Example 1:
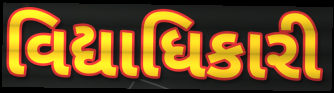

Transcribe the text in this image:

વિદ્યાધિકારી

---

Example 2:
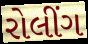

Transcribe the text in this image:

રોલીંગ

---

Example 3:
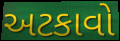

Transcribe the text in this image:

અટકાવો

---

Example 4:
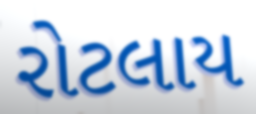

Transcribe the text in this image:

રોટલાય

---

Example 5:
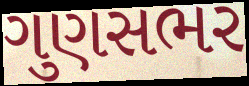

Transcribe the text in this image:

ગુણસભર